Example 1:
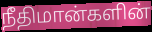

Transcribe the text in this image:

நீதிமான்களின்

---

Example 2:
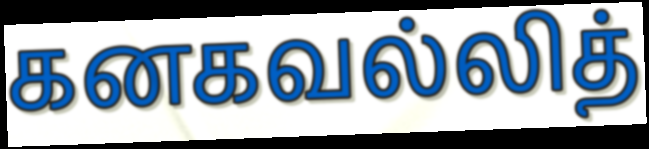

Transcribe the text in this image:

கனகவல்லித்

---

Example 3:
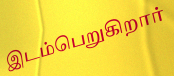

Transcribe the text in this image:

இடம்பெறுகிறார்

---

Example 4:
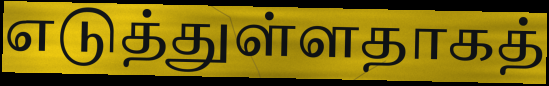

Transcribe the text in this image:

எடுத்துள்ளதாகத்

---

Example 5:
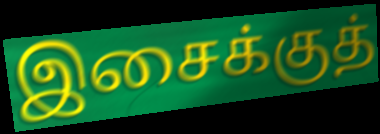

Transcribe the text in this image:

இசைக்குத்